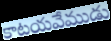
కాటయవేముడు